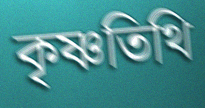
কৃষ্ণতিথি